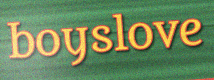
boyslove